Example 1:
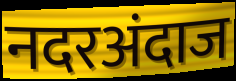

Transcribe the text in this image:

नदरअंदाज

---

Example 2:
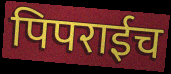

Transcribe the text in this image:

पिपराईच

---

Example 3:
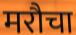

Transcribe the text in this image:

मरौचा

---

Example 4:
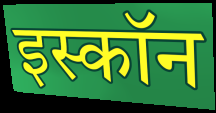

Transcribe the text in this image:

इस्‍कॉन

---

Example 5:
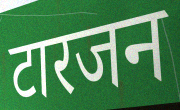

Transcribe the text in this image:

टारजन